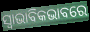
ସ୍ୱାଭାବିକଭାବରେ